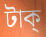
টাক্